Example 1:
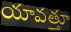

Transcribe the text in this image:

యావత్తూ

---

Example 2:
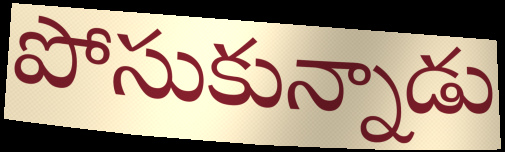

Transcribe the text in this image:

పోసుకున్నాడు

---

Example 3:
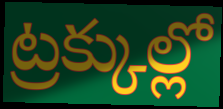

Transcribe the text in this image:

ట్రక్కుల్లో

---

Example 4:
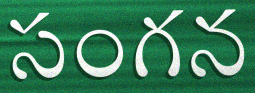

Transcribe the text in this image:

సంగన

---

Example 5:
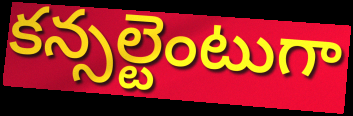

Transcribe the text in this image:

కన్సల్టెంటుగా